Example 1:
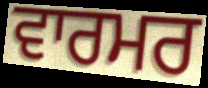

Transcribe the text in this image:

ਵਾਰਮਰ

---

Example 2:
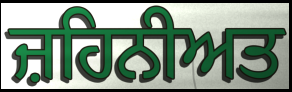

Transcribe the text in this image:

ਜ਼ਹਿਨੀਅਤ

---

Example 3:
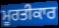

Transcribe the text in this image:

ਮੂਰਤੀਕਾਰ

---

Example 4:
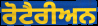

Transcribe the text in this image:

ਰੋਟੈਰੀਅਨ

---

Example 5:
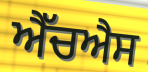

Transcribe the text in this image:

ਐੱਚਐਸ